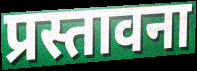
प्रस्तावना